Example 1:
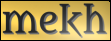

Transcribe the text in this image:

mekh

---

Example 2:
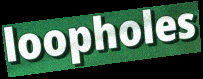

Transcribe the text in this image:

loopholes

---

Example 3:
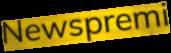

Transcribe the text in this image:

Newspremi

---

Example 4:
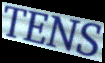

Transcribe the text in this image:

TENS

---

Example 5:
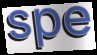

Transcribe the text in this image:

spe